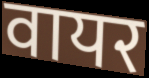
वायर